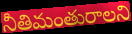
నీతిమంతురాలని